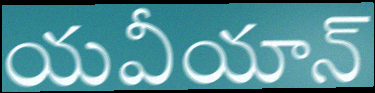
యవీయాన్